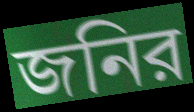
জনির